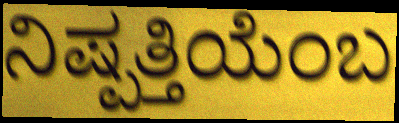
ನಿಷ್ಪತ್ತಿಯೆಂಬ